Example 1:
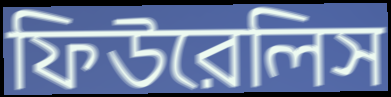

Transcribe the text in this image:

ফিউরেলিস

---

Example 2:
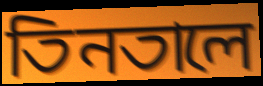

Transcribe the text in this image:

তিনতালে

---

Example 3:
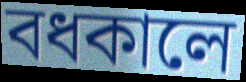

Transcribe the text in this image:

বধকালে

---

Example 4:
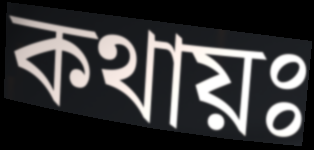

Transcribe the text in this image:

কথায়ঃ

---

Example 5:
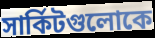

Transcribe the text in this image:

সার্কিটগুলোকে